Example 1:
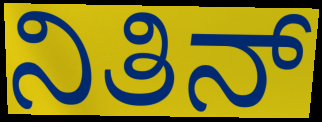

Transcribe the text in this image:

ನಿತಿನ್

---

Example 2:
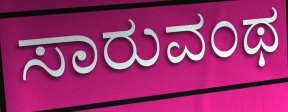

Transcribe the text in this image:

ಸಾರುವಂಥ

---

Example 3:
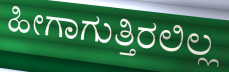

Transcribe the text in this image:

ಹೀಗಾಗುತ್ತಿರಲಿಲ್ಲ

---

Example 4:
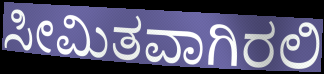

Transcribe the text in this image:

ಸೀಮಿತವಾಗಿರಲಿ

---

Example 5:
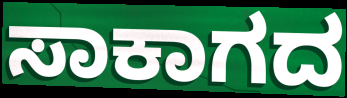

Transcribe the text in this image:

ಸಾಕಾಗದ